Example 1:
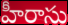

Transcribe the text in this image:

హీరాసు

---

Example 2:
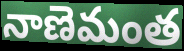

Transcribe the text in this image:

నాణెమంత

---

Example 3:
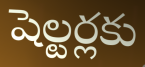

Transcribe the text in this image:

షెల్టర్లకు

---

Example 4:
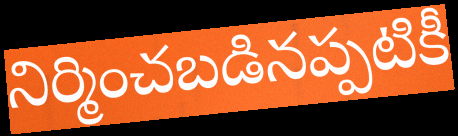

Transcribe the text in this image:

నిర్మించబడినప్పటికీ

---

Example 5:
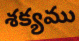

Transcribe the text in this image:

శక్యము